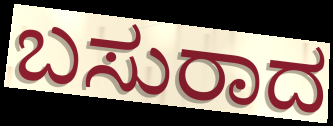
ಬಸುರಾದ